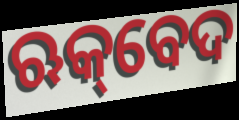
ଋକ୍‌ବେଦ